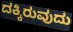
ದಕ್ಕಿರುವುದು